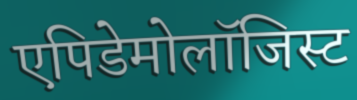
एपिडेमोलॉजिस्ट